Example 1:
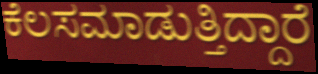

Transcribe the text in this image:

ಕೆಲಸಮಾಡುತ್ತಿದ್ದಾರೆ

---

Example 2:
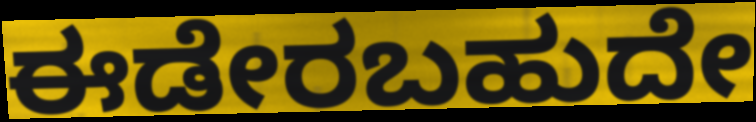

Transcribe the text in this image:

ಈಡೇರಬಹುದೇ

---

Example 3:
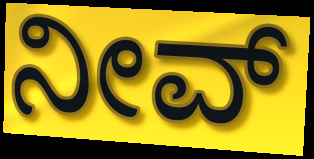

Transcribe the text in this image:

ನೀವ್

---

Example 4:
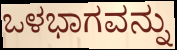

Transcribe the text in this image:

ಒಳಭಾಗವನ್ನು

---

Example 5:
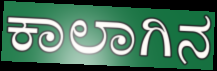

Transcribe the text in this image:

ಕಾಲಾಗಿನ